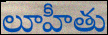
లూహీతు